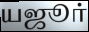
யஜூர்